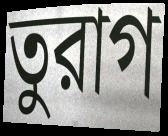
তুরাগ